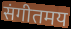
संगीतमय